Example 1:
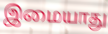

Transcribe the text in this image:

இமையாது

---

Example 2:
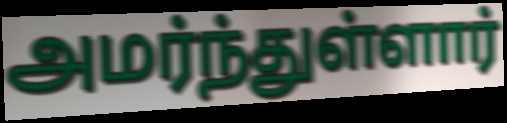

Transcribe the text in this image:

அமர்ந்துள்ளார்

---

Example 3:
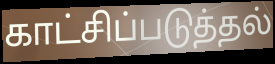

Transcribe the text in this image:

காட்சிப்படுத்தல்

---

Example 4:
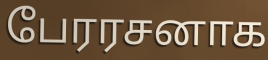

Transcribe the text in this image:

பேரரசனாக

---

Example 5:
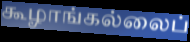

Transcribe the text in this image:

கூழாங்கல்லைப்